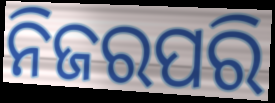
ନିଜରପରି